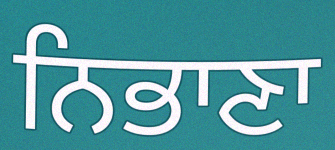
ਨਿਭਾਣਾ